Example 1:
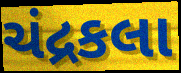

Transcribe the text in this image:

ચંદ્રકલા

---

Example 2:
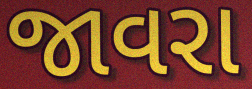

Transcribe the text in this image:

જાવરા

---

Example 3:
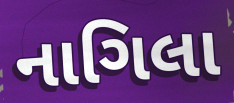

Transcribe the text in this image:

નાગિલા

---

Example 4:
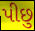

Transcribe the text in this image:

પીછુ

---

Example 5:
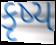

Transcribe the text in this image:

કૃષ્ય